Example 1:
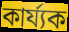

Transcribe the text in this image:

কাৰ্য্যক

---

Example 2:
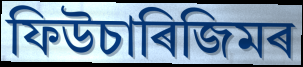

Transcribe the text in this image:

ফিউচাৰিজিমৰ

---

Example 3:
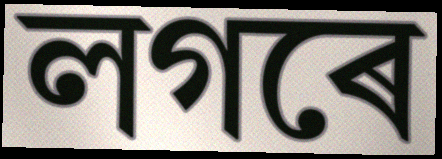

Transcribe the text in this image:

লগৰে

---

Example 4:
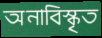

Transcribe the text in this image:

অনাবিস্কৃত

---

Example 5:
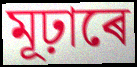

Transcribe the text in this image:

মূঢ়াৰে